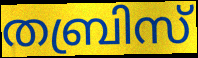
തബ്രിസ്